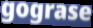
gograse